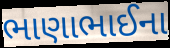
ભાણાભાઈના